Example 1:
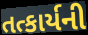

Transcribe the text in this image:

તત્કાર્યની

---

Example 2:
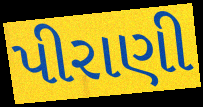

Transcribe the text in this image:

પીરાણી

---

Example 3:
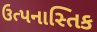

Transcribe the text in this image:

ઉત્પનાસ્તિક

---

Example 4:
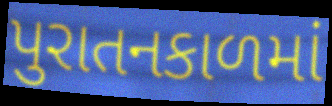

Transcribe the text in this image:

પુરાતનકાળમાં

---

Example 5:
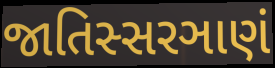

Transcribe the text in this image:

જાતિસ્સરઞાણં